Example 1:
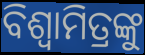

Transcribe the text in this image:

ବିଶ୍ଵାମିତ୍ରଙ୍କୁ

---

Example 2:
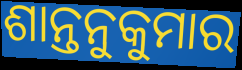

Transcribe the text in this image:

ଶାନ୍ତନୁକୁମାର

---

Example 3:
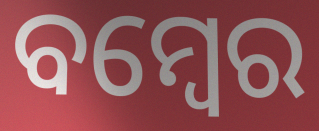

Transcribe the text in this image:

ବମ୍ବେର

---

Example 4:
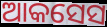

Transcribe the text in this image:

ଆକସେସ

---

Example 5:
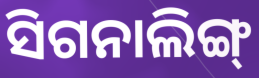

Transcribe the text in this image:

ସିଗନାଲିଙ୍ଗ୍